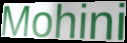
Mohini